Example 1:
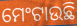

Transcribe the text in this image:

ମେଂଟାଉଛି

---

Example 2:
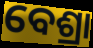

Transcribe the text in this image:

ବେଶ୍ରା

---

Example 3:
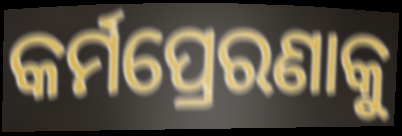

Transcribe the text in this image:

କର୍ମପ୍ରେରଣାକୁ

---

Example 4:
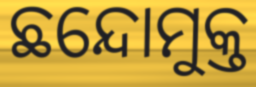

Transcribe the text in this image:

ଛନ୍ଦୋମୁକ୍ତ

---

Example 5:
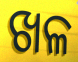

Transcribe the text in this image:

ଖଳ